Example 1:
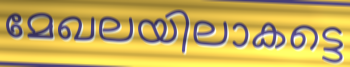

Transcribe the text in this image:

മേഖലയിലാകട്ടെ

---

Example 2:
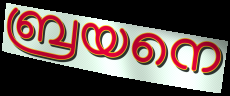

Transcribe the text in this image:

ബ്രയനെ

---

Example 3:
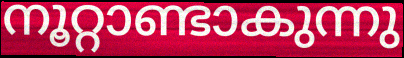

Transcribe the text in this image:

നൂറ്റാണ്ടാകുന്നു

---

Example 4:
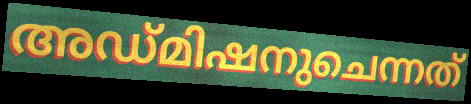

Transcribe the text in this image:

അഡ്മിഷനുചെന്നത്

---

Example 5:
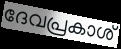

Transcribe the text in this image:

ദേവപ്രകാശ്